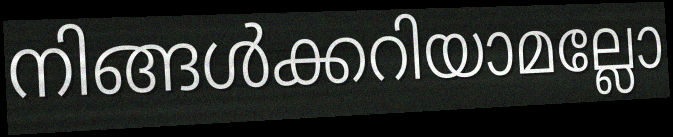
നിങ്ങൾക്കറിയാമല്ലോ